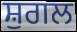
ਸ਼ੁਗਲ